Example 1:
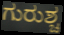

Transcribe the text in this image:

ಗುರುಶ್ಚ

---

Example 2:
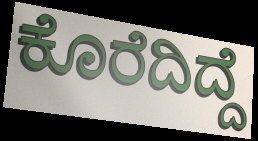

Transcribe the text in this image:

ಕೊರೆದಿದ್ದೆ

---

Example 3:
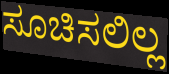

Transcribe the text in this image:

ಸೂಚಿಸಲಿಲ್ಲ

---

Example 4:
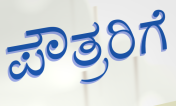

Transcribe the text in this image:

ಪೌತ್ರರಿಗೆ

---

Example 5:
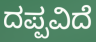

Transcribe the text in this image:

ದಪ್ಪವಿದೆ